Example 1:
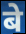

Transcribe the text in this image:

बे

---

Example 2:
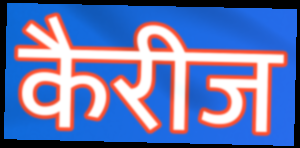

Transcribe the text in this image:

कैरीज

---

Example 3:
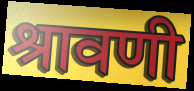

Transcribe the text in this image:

श्रावणी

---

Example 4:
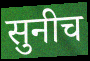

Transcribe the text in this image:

सुनीच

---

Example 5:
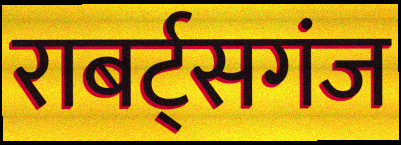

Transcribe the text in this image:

राबर्ट्सगंज